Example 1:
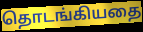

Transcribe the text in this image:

தொடங்கியதை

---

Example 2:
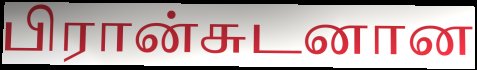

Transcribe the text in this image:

பிரான்சுடனான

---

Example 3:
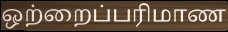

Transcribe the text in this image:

ஒற்றைப்பரிமாண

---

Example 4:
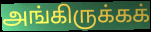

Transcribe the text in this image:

அங்கிருக்கக்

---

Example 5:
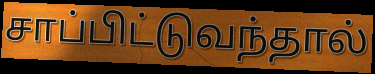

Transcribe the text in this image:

சாப்பிட்டுவந்தால்